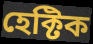
হেক্টিক